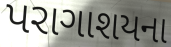
પરાગાશયના